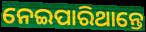
ନେଇପାରିଥାନ୍ତେ